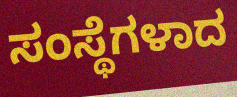
ಸಂಸ್ಥೆಗಳಾದ